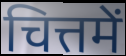
चित्तमें